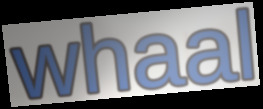
whaal